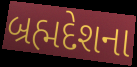
બ્રહ્મદેશના